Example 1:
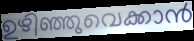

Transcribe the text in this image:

ഉഴിഞ്ഞുവെക്കാൻ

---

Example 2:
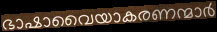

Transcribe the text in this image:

ഭാഷാവൈയാകരണന്മാർ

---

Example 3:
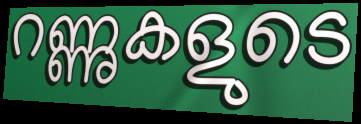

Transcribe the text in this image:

റണ്ണുകളുടെ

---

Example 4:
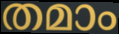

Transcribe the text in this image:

തമാം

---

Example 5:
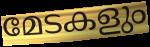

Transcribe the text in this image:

മേടകളും